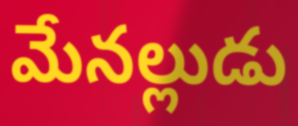
మేనల్లుడు